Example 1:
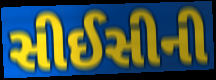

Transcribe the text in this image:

સીઈસીની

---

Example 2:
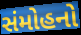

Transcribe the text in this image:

સંમોહનો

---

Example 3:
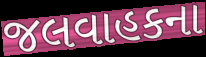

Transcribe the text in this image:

જલવાહકના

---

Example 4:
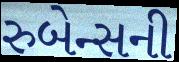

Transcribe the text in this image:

રુબેન્સની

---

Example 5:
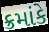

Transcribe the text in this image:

ક્રમાંકે